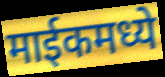
माईकमध्ये